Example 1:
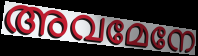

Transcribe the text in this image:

അവമേനേ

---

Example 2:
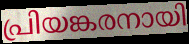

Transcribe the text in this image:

പ്രിയങ്കരനായി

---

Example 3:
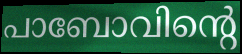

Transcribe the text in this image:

പാബോവിന്റെ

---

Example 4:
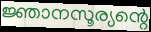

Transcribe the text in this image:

ജ്ഞാനസൂര്യന്റെ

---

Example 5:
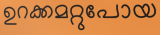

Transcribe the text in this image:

ഉറക്കമറ്റുപോയ